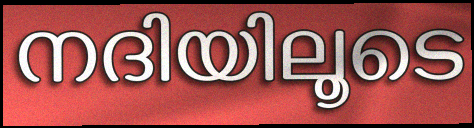
നദിയിലൂടെ